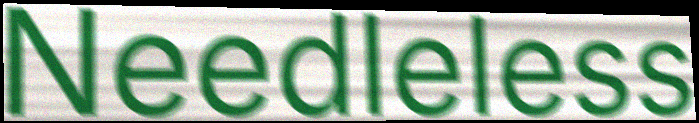
Needleless